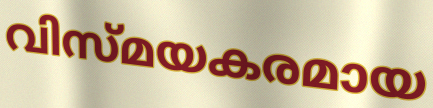
വിസ്മയകരമായ